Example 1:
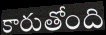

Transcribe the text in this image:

కారుతోంది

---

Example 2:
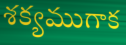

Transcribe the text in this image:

శక్యముగాక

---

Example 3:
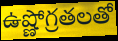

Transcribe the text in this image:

ఉష్ణోగ్రతలతో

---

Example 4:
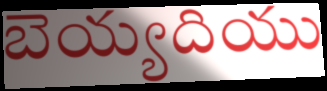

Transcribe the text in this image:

బెయ్యదియు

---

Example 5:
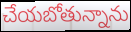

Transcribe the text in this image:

చేయబోతున్నాను